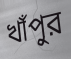
খাঁপুর